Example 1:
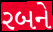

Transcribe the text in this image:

રબને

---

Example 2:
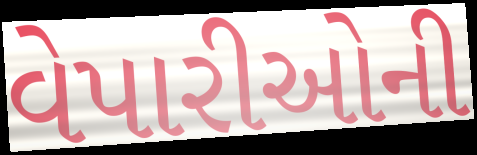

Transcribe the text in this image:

વેપારીઓની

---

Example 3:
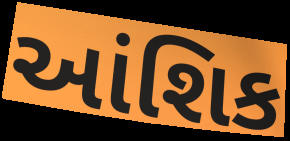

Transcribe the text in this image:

આંશિક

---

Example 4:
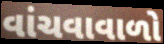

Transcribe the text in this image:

વાંચવાવાળો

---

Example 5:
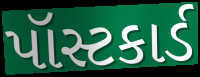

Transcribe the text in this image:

પૉસ્ટકાર્ડ